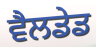
ਵੈਲਡੇਡ